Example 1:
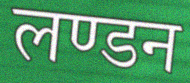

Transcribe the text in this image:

लण्डन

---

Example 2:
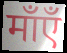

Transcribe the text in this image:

माँएँ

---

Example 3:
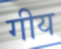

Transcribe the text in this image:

गीय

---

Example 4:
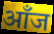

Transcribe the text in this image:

आँज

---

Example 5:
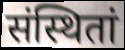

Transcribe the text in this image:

संस्थितां